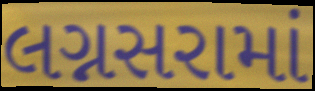
લગ્નસરામાં